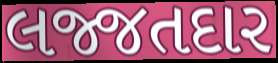
લજ્જતદાર